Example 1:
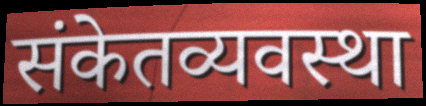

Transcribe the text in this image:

संकेतव्यवस्था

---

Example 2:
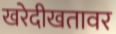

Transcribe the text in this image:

खरेदीखतावर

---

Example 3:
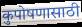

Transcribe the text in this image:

कुपोषणासाठी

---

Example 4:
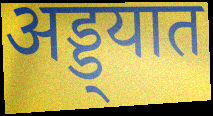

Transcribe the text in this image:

अड्ड्यात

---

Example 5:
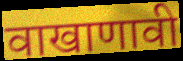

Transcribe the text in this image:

वाखाणावी